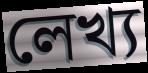
লেখ্য